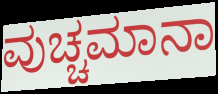
ವುಚ್ಚಮಾನಾ